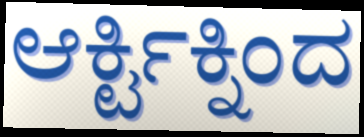
ಆರ್ಕ್ಟಿಕ್ನಿಂದ